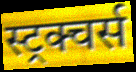
स्ट्रक्चर्स